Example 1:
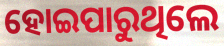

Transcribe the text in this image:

ହୋଇପାରୁଥିଲେ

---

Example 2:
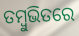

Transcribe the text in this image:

ତମ୍ବୁଭିତରେ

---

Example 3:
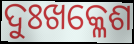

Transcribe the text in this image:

ଦୁଃଖକ୍ଳେଶ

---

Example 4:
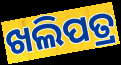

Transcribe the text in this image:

ଖଲିପତ୍ର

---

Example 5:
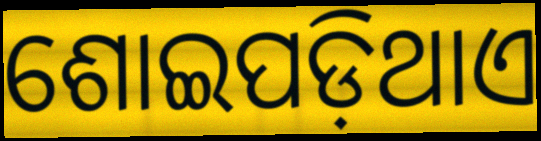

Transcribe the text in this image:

ଶୋଇପଡ଼ିଥାଏ